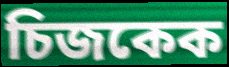
চিজকেক